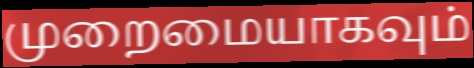
முறைமையாகவும்